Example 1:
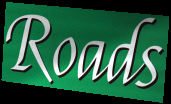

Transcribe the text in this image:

Roads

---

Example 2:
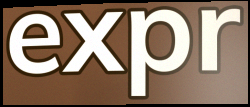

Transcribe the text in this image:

expr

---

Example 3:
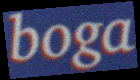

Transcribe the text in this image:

boga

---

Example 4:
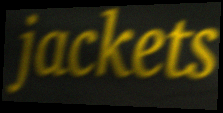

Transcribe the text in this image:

jackets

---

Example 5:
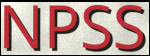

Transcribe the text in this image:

NPSS